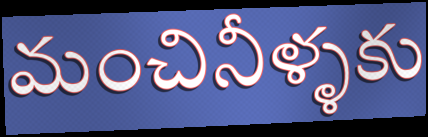
మంచినీళ్ళకు